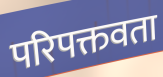
परिपक्तवता